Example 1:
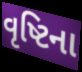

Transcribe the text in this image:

વૃષ્ટિના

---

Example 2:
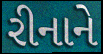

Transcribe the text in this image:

રીનાને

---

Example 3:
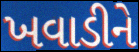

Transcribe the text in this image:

ખવાડીને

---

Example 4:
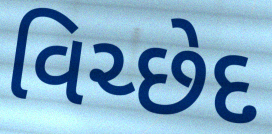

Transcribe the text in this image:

વિચ્છેદ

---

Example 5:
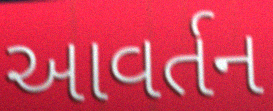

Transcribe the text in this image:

આવર્તન